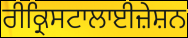
ਰੀਕ੍ਰਿਸਟਾਲਾਈਜ਼ੇਸ਼ਨ